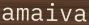
amaiva